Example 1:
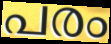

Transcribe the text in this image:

പരം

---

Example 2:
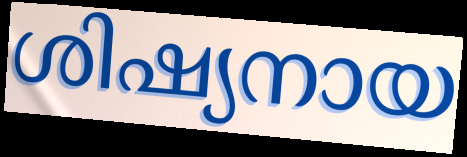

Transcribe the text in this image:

ശിഷ്യനായ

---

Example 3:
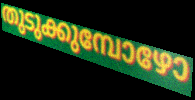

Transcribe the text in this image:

തുടുക്കുമ്പോഴോ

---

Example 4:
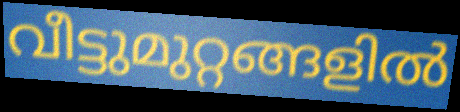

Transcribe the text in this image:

വീട്ടുമുറ്റങ്ങളിൽ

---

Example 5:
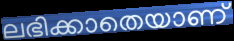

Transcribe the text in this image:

ലഭിക്കാതെയാണ്